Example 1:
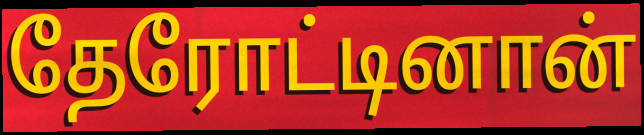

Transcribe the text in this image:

தேரோட்டினான்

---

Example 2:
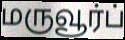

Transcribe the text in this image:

மருவூர்ப்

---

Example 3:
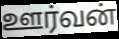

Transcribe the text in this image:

ஊர்வன்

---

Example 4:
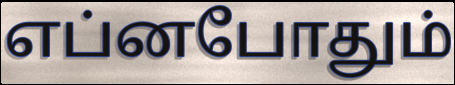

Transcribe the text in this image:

எப்னபோதும்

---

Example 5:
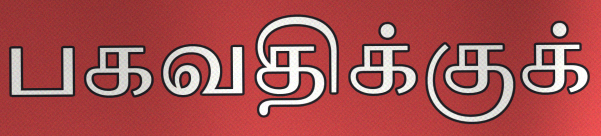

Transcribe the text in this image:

பகவதிக்குக்